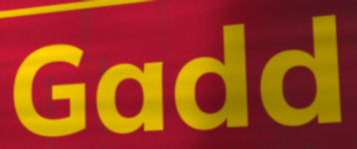
Gadd